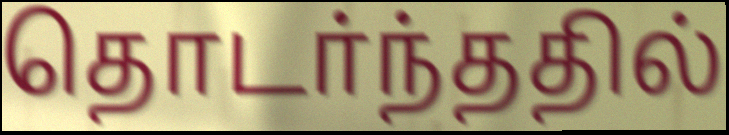
தொடர்ந்ததில்